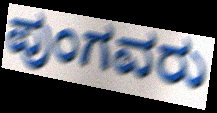
ಪುಂಗವರು